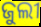
ଜୁଲୀ